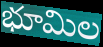
భూమిల